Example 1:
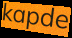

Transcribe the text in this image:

kapde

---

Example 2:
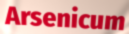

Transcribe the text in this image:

Arsenicum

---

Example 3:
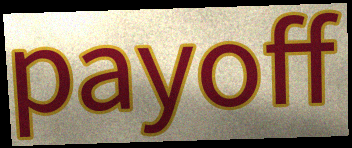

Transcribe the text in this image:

payoff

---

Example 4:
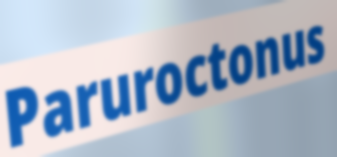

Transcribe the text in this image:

Paruroctonus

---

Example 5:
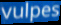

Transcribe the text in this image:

vulpes